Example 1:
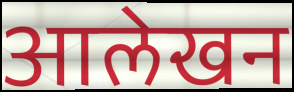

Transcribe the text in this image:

आलेखन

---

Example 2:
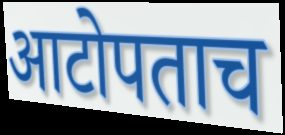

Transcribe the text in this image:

आटोपताच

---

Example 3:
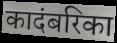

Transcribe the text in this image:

कादंबरिका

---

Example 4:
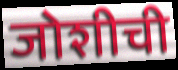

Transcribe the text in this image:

जोशीची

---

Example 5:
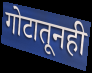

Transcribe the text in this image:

गोटातूनही